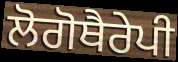
ਲੋਗੋਥੈਰੇਪੀ